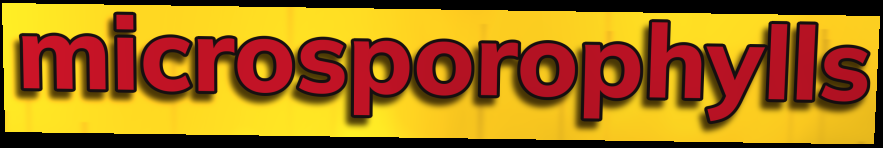
microsporophylls